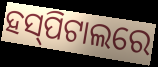
ହସ୍‌ପିଟାଲରେ